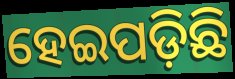
ହେଇପଡ଼ିଛି